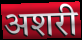
अशरी